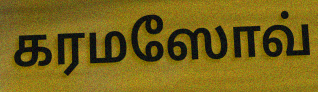
கரமஸோவ்